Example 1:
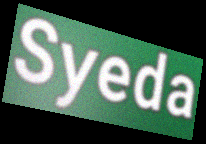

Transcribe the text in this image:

Syeda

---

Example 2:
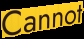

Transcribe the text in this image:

Cannot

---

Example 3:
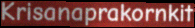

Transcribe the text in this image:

Krisanaprakornkit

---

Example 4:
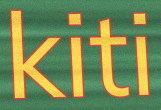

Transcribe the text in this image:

kiti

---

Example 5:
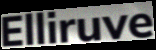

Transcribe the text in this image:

Elliruve